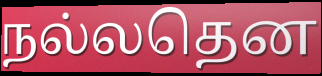
நல்லதென